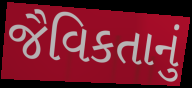
જૈવિકતાનું